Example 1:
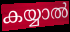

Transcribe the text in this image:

കയ്യാൽ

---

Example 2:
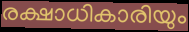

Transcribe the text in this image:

രക്ഷാധികാരിയും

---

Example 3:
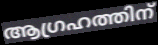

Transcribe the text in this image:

ആഗ്രഹത്തിന്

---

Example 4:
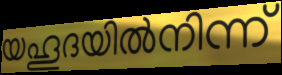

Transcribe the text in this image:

യഹൂദയിൽനിന്ന്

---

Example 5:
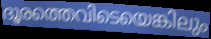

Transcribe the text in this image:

ദൂരത്തെവിടെയെങ്കിലും